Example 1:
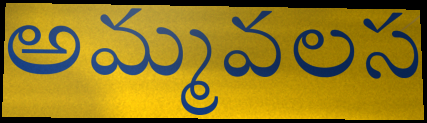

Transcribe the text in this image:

అమ్మవలస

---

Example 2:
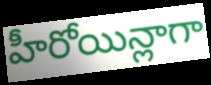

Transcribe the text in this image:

హీరోయిన్లాగా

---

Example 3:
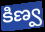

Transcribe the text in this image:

కిణ్వ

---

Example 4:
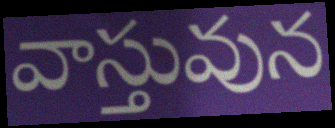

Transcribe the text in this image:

వాస్తువున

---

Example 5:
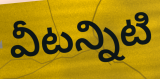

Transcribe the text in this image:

వీటన్నిటి